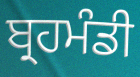
ਬ੍ਰਹਮੰਡੀ